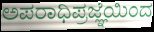
ಅಪರಾಧಿಪ್ರಜ್ಞೆಯಿಂದ